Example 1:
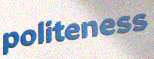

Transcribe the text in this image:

politeness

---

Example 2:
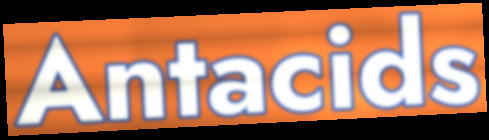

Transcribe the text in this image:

Antacids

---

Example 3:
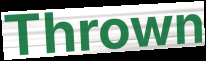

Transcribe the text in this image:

Thrown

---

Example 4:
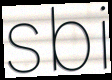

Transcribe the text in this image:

sbi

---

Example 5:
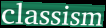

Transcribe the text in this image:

classism